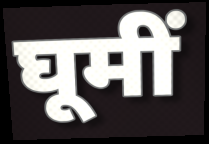
घूमीं